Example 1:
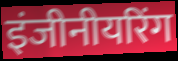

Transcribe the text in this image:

इंजीनीयरिंग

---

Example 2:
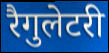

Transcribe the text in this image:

रैगुलेटरी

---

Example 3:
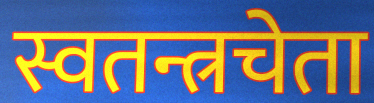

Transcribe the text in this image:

स्वतन्त्रचेता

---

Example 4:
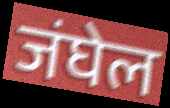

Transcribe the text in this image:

जंघेल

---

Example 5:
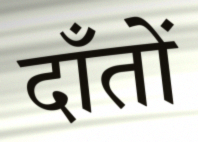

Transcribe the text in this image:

दाँतों